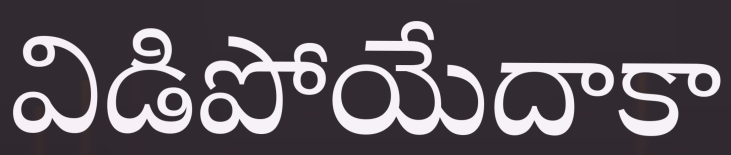
విడిపోయేదాకా